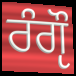
ਰੰਗੵੌ